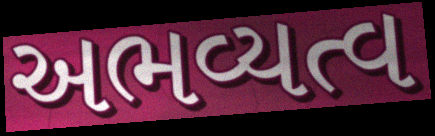
અભવ્યત્વ